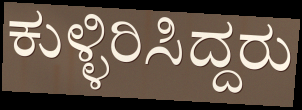
ಕುಳ್ಳಿರಿಸಿದ್ದರು